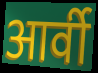
आर्वी